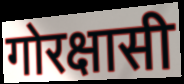
गोरक्षासी